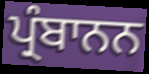
ਪ੍ਰੰਬਾਨਨ